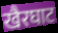
खैरघाट